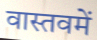
वास्तवमें